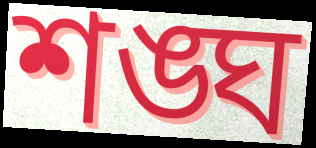
শঙ্ঘ